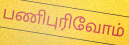
பணிபுரிவோம்